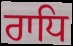
ਰਾਧਿ